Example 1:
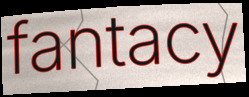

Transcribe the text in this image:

fantacy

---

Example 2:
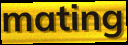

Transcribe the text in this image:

mating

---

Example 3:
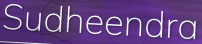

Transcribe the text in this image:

Sudheendra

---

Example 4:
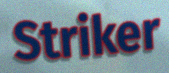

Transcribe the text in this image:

Striker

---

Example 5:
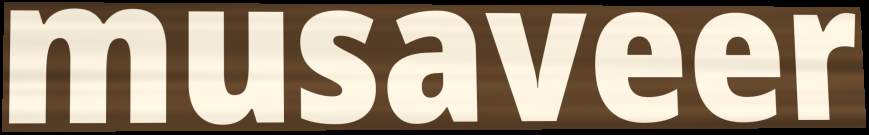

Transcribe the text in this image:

musaveer